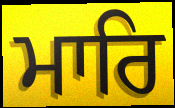
ਮਾਰਿ